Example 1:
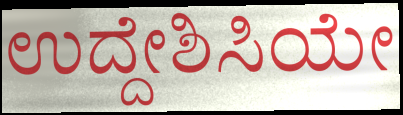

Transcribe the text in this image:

ಉದ್ದೇಶಿಸಿಯೇ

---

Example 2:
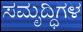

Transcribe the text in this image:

ಸಮೃದ್ಧಿಗಳ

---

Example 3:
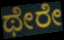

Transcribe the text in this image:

ಥೇರೇ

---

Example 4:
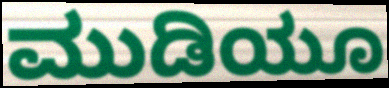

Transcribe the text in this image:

ಮುಡಿಯೂ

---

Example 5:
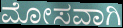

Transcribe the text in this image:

ಮೋಸವಾಗಿ